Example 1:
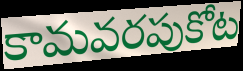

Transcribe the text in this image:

కామవరపుకోట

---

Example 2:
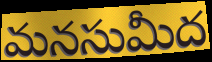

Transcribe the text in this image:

మనసుమీద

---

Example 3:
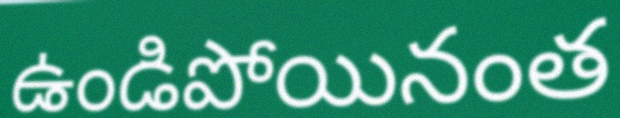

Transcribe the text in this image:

ఉండిపోయినంత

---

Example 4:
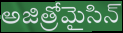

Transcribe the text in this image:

అజిత్రోమైసిన్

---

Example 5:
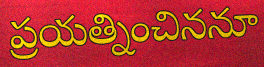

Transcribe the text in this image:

ప్రయత్నించిననూ